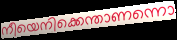
നീയെനിക്കെന്താണന്നൊ